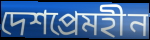
দেশপ্রেমহীন